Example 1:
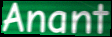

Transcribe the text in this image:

Anant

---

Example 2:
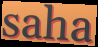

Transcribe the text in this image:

saha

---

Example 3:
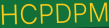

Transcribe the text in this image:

HCPDPM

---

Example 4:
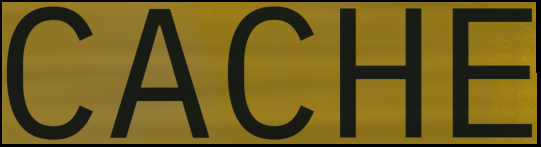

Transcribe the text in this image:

CACHE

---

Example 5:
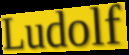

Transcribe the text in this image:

Ludolf